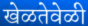
खेळतेवेळी